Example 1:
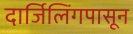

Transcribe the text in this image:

दार्जिलिंगपासून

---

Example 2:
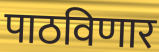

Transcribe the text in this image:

पाठविणार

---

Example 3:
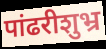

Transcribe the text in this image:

पांढरीशुभ्र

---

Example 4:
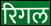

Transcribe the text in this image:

रिगल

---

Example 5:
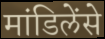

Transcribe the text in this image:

मांडिलेंसे